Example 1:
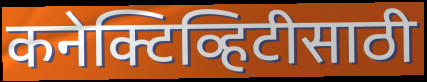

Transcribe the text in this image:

कनेक्टिव्हिटीसाठी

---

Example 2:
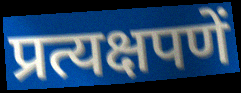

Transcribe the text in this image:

प्रत्यक्षपणें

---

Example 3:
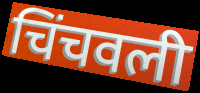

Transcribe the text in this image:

चिंचवली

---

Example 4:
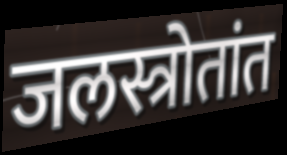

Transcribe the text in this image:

जलस्त्रोतांत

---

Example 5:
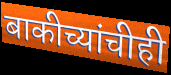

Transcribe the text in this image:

बाकीच्यांचीही